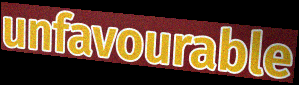
unfavourable